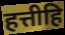
हत्तीहि